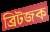
ব্রিটজক